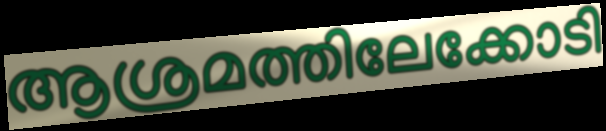
ആശ്രമത്തിലേക്കോടി